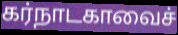
கர்நாடகாவைச்